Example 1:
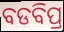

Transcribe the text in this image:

ବଡବିପ୍ର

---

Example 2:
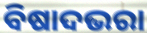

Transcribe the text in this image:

ବିଷାଦଭରା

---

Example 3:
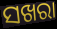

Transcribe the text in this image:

ସଖରା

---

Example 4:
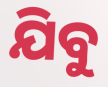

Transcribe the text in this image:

ଯିବୁ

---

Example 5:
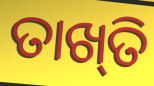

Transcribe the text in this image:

ତାଖ୍‍ତି